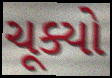
ચૂક્યો